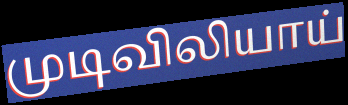
முடிவிலியாய்